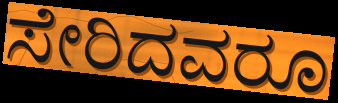
ಸೇರಿದವರೂ